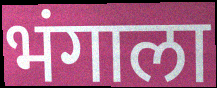
भंगाला